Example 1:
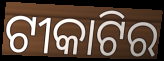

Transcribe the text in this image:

ଟୀକାଟିର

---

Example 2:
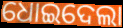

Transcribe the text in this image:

ଧୋଇଦେଲା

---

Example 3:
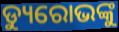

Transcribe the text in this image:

ଡ୍ୟୁରୋଭଙ୍କୁ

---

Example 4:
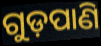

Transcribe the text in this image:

ଗୁଡ଼ପାଣି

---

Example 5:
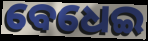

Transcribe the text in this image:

ବେଧେଇ